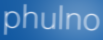
phulno